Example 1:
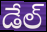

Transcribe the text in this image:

డేల్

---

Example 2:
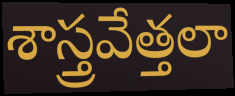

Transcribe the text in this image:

శాస్త్రవేత్తలా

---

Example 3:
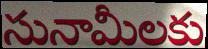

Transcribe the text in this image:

సునామీలకు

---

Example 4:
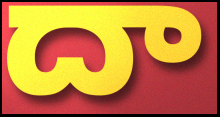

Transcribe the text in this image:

దా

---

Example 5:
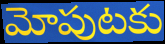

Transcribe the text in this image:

మోపుటకు